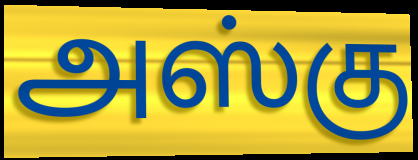
அஸ்கு